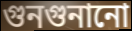
গুনগুনানো